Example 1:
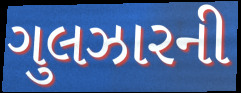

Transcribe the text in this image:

ગુલઝારની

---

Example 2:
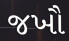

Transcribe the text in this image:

જખૌ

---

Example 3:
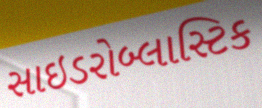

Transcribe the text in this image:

સાઇડરોબ્લાસ્ટિક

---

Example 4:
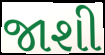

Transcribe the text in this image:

જાશી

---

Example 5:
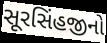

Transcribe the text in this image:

સૂરસિંહજીનો